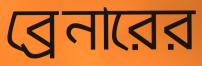
ব্রেনারের